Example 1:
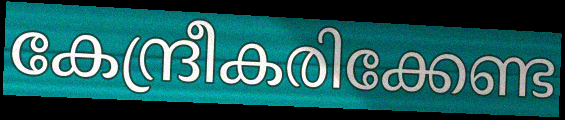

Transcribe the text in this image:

കേന്ദ്രീകരിക്കേണ്ട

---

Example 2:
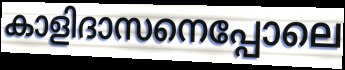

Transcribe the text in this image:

കാളിദാസനെപ്പോലെ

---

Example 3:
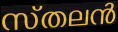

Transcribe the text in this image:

സ്‌തലൻ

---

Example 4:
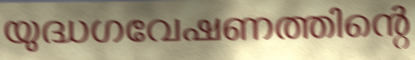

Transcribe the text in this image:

യുദ്ധഗവേഷണത്തിന്റെ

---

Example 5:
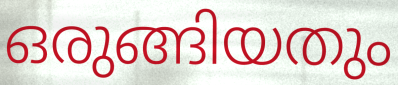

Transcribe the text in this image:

ഒരുങ്ങിയതും